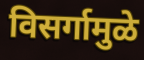
विसर्गामुळे